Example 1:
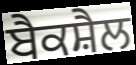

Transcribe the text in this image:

ਬੈਕਸ਼ੈਲ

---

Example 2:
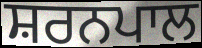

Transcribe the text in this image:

ਸ਼ਰਨਪਾਲ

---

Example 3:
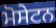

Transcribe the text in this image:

ਮੋਸੇਟਨ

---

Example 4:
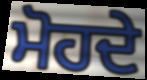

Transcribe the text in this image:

ਮੋਹਦੇ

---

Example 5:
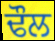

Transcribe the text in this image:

ਢੌਲ